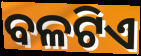
ବଳଟିଏ